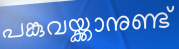
പങ്കുവയ്ക്കാനുണ്ട്